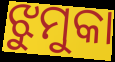
ଝୁମୁକା